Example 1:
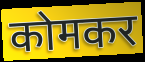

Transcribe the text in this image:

कोमकर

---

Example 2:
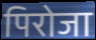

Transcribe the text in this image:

पिरोजा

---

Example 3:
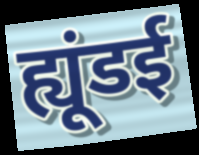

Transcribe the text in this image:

ह्यूंडई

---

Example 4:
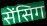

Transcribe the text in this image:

सेंसिग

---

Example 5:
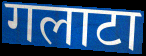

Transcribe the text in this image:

गलाटा